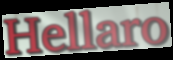
Hellaro